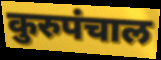
कुरुपंचाल